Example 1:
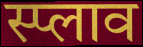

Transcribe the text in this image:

स्प्लाव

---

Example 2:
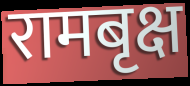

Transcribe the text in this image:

रामबृक्ष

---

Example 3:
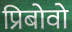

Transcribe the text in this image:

प्रिबोवो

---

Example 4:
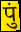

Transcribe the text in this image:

पुं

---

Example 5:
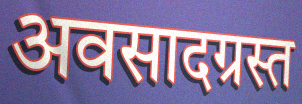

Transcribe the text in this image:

अवसादग्रस्त